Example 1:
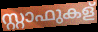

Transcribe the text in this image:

സ്റ്റാഫുകള്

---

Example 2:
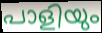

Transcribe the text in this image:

പാളിയും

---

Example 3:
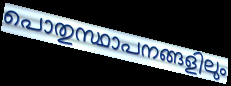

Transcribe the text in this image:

പൊതുസ്ഥാപനങ്ങളിലും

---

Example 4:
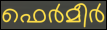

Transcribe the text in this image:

ഫെർമീർ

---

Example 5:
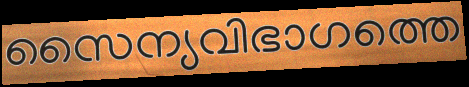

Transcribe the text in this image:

സൈന്യവിഭാഗത്തെ